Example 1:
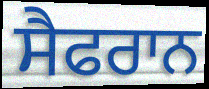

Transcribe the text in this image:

ਸੈਫਰਾਨ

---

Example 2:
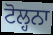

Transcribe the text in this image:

ਟੋਲ੍ਹਨਾ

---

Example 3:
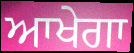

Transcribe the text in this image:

ਆਖੇਗਾ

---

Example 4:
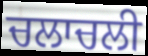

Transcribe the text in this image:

ਚਲਾਚਲੀ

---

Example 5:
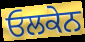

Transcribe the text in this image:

ਓਲਕੇਨ